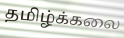
தமிழ்க்கலை